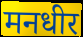
मनधीर